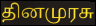
தினமுரசு